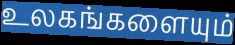
உலகங்களையும்